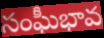
సంఘీభావ